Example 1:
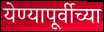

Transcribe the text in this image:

येण्यापूर्वीच्या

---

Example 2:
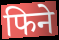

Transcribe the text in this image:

फिने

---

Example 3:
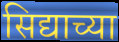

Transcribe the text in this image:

सिद्याच्या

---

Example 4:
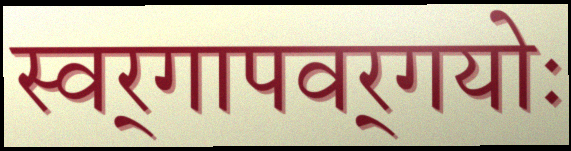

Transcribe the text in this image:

स्वर्गापवर्गयोः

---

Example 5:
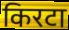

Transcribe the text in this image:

किरटा